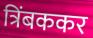
त्रिंबककर